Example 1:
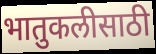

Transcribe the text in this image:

भातुकलीसाठी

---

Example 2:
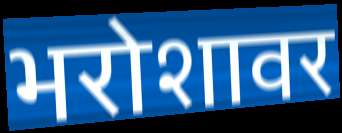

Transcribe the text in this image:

भरोशावर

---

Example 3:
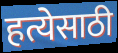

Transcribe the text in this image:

हत्येसाठी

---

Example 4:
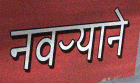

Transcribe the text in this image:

नवऱ्याने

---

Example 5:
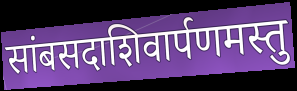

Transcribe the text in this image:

सांबसदाशिवार्पणमस्तु